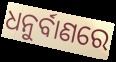
ଧନୁର୍ବାଣରେ